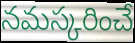
నమస్కరించే